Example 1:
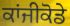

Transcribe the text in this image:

ਕਾਂਜੀਕੋਡੇ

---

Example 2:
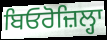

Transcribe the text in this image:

ਬਿਓਰੋਜ਼ਿਲ੍ਹਾ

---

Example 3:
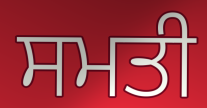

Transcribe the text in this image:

ਸਮਤੀ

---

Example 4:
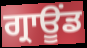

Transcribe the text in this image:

ਗ੍ਰਾਊਂਡ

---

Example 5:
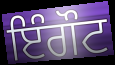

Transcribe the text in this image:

ਇੰਗੌਟ